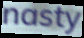
nasty